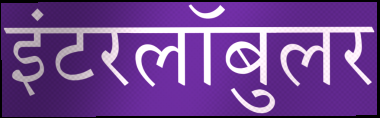
इंटरलॉबुलर